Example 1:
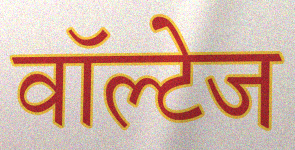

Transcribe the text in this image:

वॉल्टेज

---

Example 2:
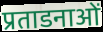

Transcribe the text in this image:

प्रताडनाओं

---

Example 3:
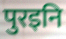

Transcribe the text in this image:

पुरइनि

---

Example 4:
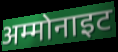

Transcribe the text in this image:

अम्मोनाइट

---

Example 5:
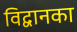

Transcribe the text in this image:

विद्वानका